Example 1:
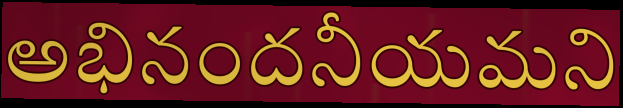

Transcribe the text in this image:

అభినందనీయమని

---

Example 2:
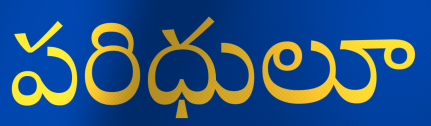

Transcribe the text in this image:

పరిధులూ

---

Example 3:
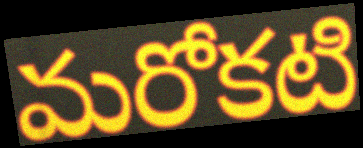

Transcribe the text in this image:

మరోకటి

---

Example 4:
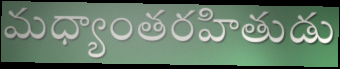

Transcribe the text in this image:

మధ్యాంతరహితుడు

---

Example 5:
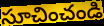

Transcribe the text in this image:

సూచించండి